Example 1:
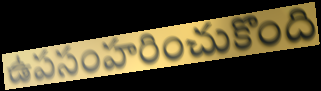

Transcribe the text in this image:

ఉపసంహరించుకొంది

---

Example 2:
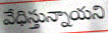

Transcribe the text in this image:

వేధిస్తున్నాయని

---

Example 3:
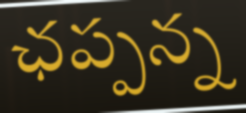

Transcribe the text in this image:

ఛప్పన్న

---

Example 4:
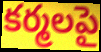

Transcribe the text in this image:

కర్మలపై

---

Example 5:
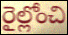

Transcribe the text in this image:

రైల్లోంచి